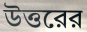
উত্তরের